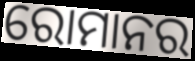
ରୋମାନର